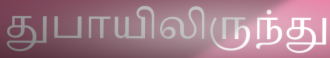
துபாயிலிருந்து